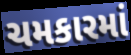
ચમકારમાં